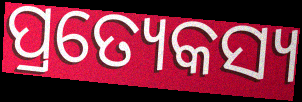
ପ୍ରତ୍ୟେକସ୍ୟ